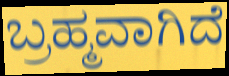
ಬ್ರಹ್ಮವಾಗಿದೆ